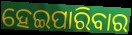
ହେଇପାରିବାର